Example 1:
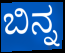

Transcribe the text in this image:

ಬಿನ್ನ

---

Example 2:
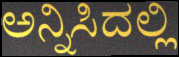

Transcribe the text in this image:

ಅನ್ನಿಸಿದಲ್ಲಿ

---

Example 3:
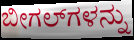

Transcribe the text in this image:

ಬೀಗಲ್‌ಗಳನ್ನು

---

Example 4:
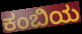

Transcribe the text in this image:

ಕಂಬಿಯ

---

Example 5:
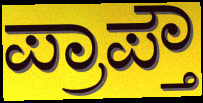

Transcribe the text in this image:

ಪ್ರಾಪ್ತೌ